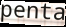
penta